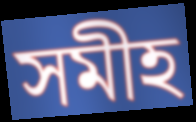
সমীহ